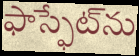
ఫాస్ఫేట్‌ను